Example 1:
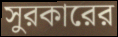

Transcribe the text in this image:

সুরকারের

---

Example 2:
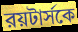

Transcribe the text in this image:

রয়টার্সকে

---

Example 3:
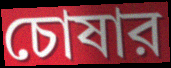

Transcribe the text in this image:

চোষার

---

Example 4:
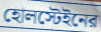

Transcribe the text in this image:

হোলস্টেইনের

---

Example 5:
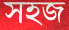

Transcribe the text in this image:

সহজ